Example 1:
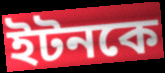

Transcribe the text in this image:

ইটনকে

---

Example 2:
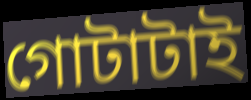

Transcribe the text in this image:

গোটাটাই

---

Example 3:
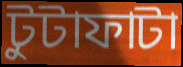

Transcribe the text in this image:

টুটাফাটা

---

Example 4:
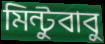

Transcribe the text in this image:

মিন্টুবাবু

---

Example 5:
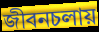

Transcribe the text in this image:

জীবনচলায়